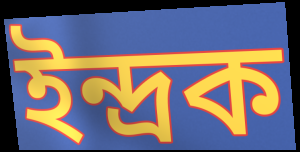
ইন্দ্ৰক